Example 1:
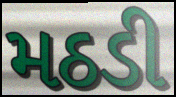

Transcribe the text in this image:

મઠડી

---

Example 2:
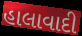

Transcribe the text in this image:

હાલાવાદી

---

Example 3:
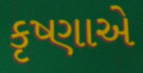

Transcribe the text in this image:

કૃષ્ણાએ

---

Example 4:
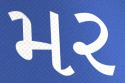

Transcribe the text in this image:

મર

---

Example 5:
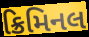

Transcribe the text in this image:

ક્રિમિનલ